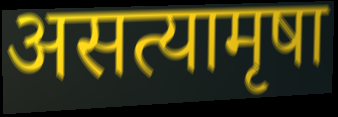
असत्यामृषा